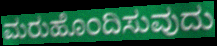
ಮರುಹೊಂದಿಸುವುದು